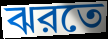
ঝরতে